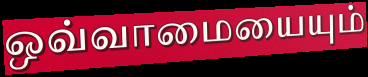
ஒவ்வாமையையும்